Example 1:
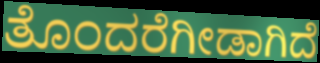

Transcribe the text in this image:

ತೊಂದರೆಗೀಡಾಗಿದೆ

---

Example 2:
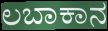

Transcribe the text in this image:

ಲಬಾಕಾನ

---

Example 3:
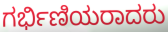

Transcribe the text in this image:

ಗರ್ಭಿಣಿಯರಾದರು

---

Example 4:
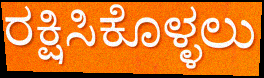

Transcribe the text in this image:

ರಕ್ಷಿಸಿಕೊಳ್ಳಲು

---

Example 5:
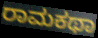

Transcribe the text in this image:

ರಾಮಕಥಾ